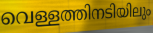
വെള്ളത്തിനടിയിലും